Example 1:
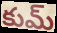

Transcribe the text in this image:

కుమ్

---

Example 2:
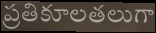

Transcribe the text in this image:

ప్రతికూలతలుగా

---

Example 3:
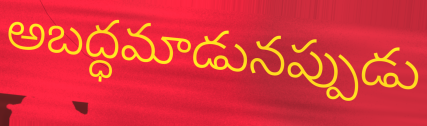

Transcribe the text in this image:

అబద్ధమాడునప్పుడు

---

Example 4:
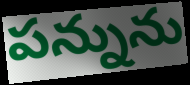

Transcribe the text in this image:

పన్నును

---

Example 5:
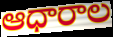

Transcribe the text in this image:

ఆధారాల